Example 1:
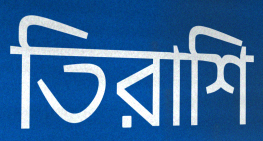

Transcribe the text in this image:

তিরাশি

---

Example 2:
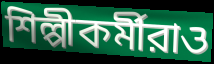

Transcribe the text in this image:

শিল্পীকর্মীরাও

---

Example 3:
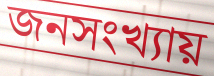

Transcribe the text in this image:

জনসংখ্যায়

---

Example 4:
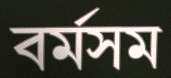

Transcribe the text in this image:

বর্মসম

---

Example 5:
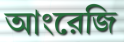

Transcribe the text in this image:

আংরেজি